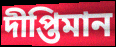
দীপ্তিমান